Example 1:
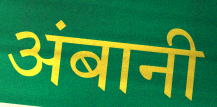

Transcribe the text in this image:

अंबानी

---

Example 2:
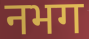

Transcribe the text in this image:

नभग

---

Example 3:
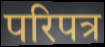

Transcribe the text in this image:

परिपत्र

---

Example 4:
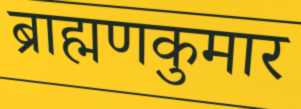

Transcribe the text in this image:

ब्राह्मणकुमार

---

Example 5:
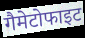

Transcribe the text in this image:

गैमेटोफाइट